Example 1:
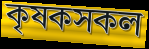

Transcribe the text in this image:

কৃষকসকল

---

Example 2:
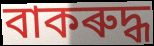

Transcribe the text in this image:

বাকৰুদ্ধ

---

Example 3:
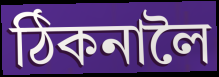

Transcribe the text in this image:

ঠিকনালৈ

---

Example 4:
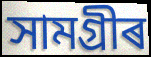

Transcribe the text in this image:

সামগ্ৰীৰ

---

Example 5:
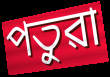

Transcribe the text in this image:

পতুৱা